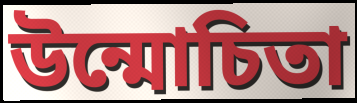
উন্মোচিতা